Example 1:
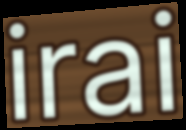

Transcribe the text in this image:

irai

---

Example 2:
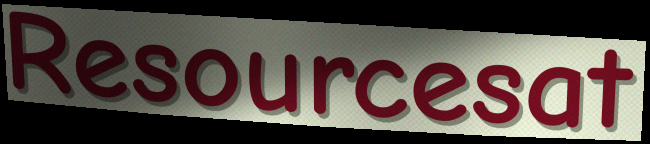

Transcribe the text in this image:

Resourcesat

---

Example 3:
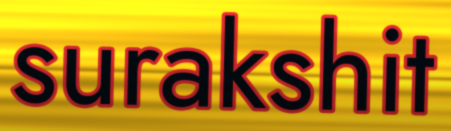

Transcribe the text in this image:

surakshit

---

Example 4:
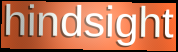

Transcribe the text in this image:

hindsight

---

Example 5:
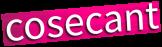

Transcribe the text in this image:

cosecant